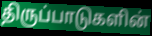
திருப்பாடுகளின்